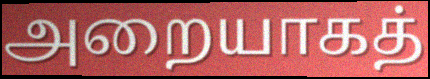
அறையாகத்